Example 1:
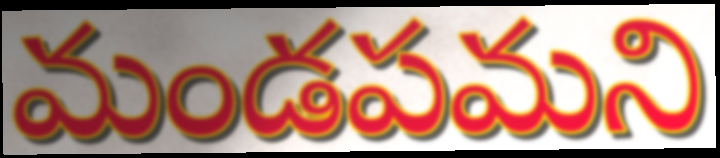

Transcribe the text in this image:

మండపమని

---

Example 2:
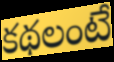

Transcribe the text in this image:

కథలంటే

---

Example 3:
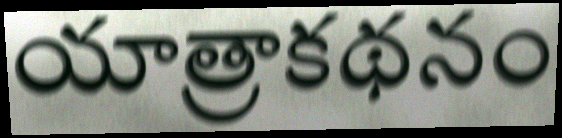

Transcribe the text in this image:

యాత్రాకథనం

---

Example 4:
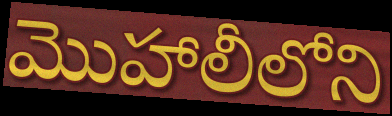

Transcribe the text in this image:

మొహాలీలోని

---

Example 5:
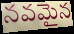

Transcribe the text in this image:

నవమైన